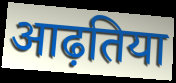
आढ़तिया